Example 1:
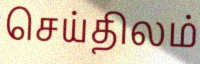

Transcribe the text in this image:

செய்திலம்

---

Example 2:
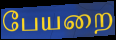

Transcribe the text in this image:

பேயறை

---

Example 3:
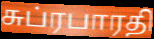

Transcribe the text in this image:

சுப்ரபாரதி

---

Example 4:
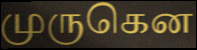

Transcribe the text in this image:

முருகென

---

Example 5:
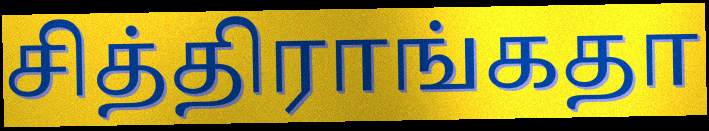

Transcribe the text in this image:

சித்திராங்கதா